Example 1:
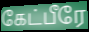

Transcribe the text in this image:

கேட்பீரே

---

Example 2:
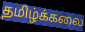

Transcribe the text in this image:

தமிழ்க்கலை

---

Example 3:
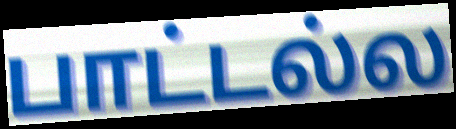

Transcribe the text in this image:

பாட்டல்ல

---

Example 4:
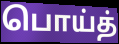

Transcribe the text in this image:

பொய்த்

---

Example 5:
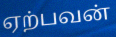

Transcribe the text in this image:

ஏற்பவன்